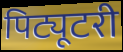
पिट्यूटरी